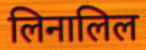
लिनालिल